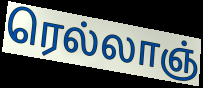
ரெல்லாஞ்